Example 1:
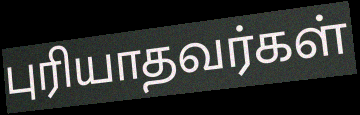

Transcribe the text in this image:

புரியாதவர்கள்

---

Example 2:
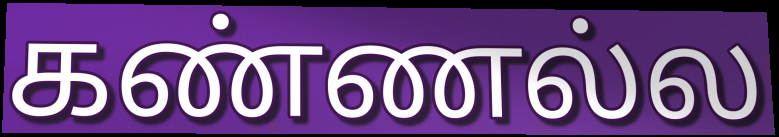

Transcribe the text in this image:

கண்ணல்ல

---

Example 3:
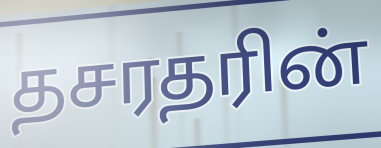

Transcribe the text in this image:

தசரதரின்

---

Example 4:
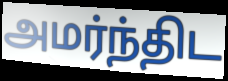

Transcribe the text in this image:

அமர்ந்திட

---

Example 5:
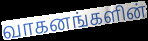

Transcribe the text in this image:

வாகனங்களின்